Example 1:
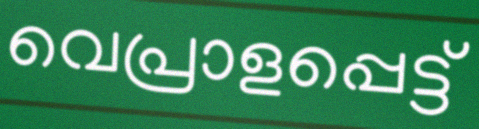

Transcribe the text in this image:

വെപ്രാളപ്പെട്ട്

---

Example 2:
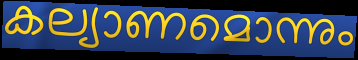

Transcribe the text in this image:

കല്യാണമൊന്നും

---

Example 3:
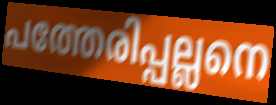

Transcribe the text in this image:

പത്തേരിപ്പല്ലനെ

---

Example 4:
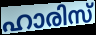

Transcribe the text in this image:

ഹാരിസ്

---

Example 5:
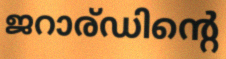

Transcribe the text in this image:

ജറാര്ഡിന്റെ